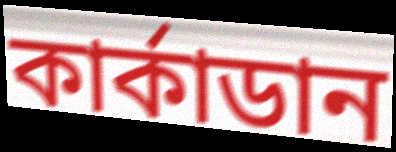
কাৰ্কাডান